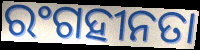
ରଂଗହୀନତା